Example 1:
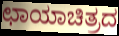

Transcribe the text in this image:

ಛಾಯಾಚಿತ್ರದ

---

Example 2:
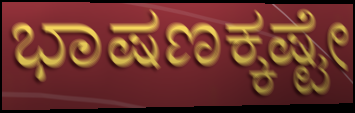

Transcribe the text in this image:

ಭಾಷಣಕ್ಕಷ್ಟೇ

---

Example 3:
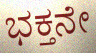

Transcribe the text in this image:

ಭಕ್ತನೇ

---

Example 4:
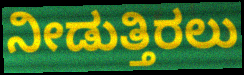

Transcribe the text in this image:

ನೀಡುತ್ತಿರಲು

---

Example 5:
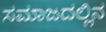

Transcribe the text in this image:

ಸಮಾಜದಲ್ಲಿನ